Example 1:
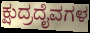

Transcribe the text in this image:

ಕ್ಷುದ್ರದೈವಗಳ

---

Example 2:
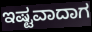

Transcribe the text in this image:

ಇಷ್ಟವಾದಾಗ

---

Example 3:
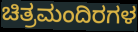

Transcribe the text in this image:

ಚಿತ್ರಮಂದಿರಗಳ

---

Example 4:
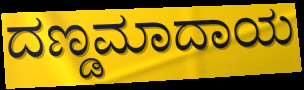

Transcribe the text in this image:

ದಣ್ಡಮಾದಾಯ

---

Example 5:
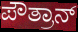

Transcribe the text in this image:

ಪೌತ್ರಾನ್